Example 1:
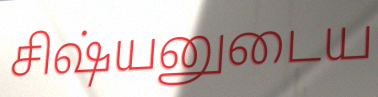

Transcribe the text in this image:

சிஷ்யனுடைய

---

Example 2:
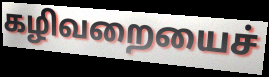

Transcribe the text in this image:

கழிவறையைச்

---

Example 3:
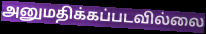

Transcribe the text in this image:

அனுமதிக்கப்படவில்லை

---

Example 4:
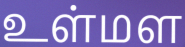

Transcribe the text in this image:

உள்மள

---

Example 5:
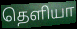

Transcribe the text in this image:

தெளியா